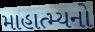
માહાત્મ્યનો